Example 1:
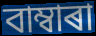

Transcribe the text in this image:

বাম্বাৰা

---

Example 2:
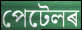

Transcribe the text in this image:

পেটেলৰ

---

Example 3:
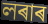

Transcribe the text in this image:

লৰাৰ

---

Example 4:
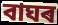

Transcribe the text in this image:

বাঘৰ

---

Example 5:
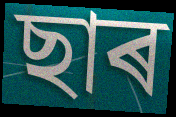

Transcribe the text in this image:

ছাৰ